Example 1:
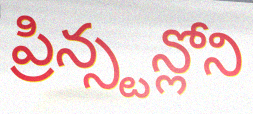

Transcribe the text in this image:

ప్రిన్స్టన్లోని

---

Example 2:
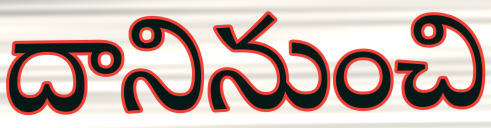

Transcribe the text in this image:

దానినుంచి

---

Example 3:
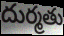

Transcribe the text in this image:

దుర్మతు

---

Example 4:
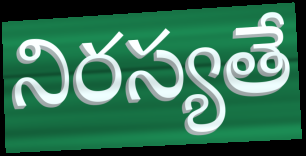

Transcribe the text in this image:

నిరస్యతే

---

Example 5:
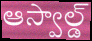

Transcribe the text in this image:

ఆస్వాల్డ్